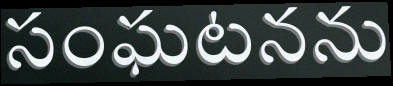
సంఘటనను